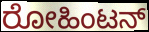
ರೋಹಿಂಟನ್